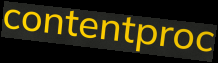
contentproc